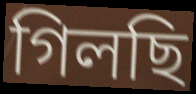
গিলছি